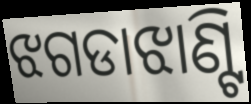
ଝଗଡାଝାଣ୍ଟି